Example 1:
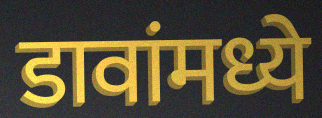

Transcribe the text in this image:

डावांमध्ये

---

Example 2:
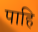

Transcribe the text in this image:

पाहि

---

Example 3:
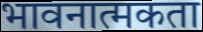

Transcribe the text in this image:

भावनात्मकता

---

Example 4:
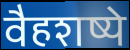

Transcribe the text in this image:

वैहशष्ये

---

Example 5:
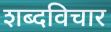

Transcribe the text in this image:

शब्दविचार